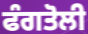
ਫੰਗਤੋਲੀ